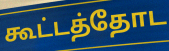
கூட்டத்தோட